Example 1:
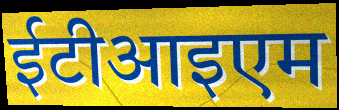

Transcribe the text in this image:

ईटीआइएम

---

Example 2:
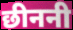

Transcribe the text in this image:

छीननी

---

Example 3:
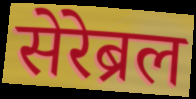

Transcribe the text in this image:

सेरेब्रल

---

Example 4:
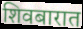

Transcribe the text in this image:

शिवबारात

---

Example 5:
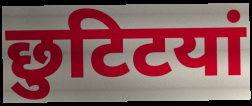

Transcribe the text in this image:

छुटिटयां